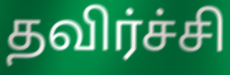
தவிர்ச்சி